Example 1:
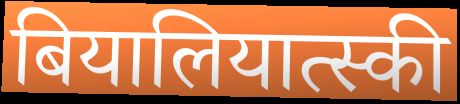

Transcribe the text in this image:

बियालियात्स्की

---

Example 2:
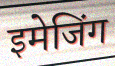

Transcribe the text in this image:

इमेजिंग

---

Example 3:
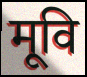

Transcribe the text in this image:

मूवि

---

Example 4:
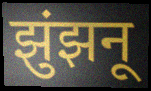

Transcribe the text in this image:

झुंझनू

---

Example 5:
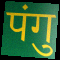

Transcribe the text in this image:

पंगु